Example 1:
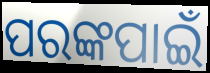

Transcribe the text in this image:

ପରଙ୍କପାଇଁ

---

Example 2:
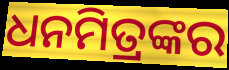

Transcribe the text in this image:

ଧନମିତ୍ରଙ୍କର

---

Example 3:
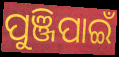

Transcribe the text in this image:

ପୁଞ୍ଜିପାଇଁ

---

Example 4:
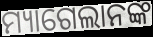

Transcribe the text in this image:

ମ୍ୟାଗେଲାନଙ୍କ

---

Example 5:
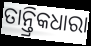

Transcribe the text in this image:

ତାନ୍ତ୍ରିକଧାରା